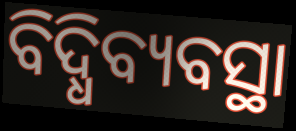
ବିଦ୍ଧିବ୍ୟବସ୍ଥା